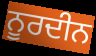
ਨੂਰਦੀਨ